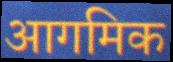
आगमिक